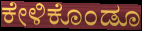
ಕೇಳಿಕೊಂಡೂ